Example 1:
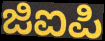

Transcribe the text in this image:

ಜಿಐಪಿ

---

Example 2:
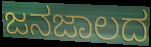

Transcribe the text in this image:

ಜನಜಾಲದ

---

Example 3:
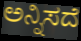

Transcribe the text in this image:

ಅನ್ನಿಸದೆ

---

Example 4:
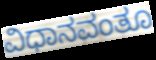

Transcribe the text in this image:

ವಿಧಾನವಂತೂ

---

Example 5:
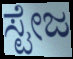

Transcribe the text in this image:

ಸ್ಟೇಜ